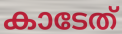
കാടേത്